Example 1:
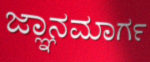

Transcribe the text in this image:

ಜ್ಞಾನಮಾರ್ಗ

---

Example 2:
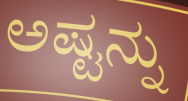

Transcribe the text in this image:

ಅಷ್ಟನ್ನು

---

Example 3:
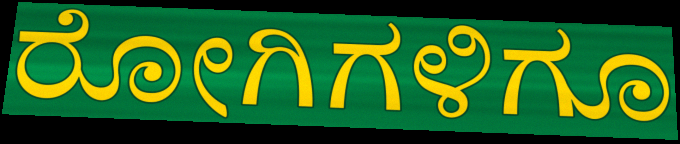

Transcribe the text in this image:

ರೋಗಿಗಳಿಗೂ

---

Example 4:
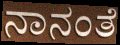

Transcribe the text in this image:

ನಾನಂತೆ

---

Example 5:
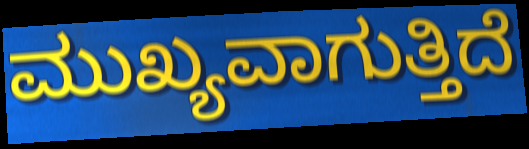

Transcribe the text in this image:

ಮುಖ್ಯವಾಗುತ್ತಿದೆ